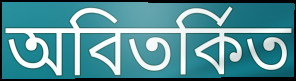
অবিতর্কিত